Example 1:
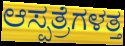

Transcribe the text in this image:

ಆಸ್ಪತ್ರೆಗಳತ್ತ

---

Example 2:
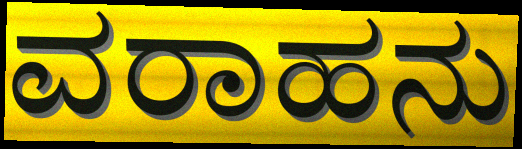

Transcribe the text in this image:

ವರಾಹನು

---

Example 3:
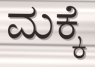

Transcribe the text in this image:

ಮಕ್ಕೆ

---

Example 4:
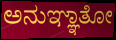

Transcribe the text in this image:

ಅನುಞ್ಞಾತೋ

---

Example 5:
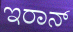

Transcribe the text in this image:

ಇರಾನ್